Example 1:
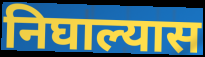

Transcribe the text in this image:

निघाल्यास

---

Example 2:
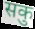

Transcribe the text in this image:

सकु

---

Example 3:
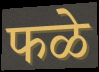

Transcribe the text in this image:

फळे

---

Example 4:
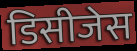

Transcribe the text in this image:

डिसीजेस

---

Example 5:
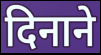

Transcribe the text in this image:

दिनाने